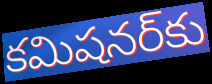
కమిషనర్‌కు